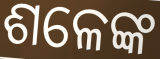
ଶଳେଙ୍କ